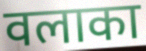
वलाका